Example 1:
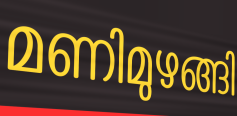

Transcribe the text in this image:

മണിമുഴങ്ങി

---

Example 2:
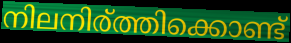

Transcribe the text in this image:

നിലനിര്ത്തിക്കൊണ്ട്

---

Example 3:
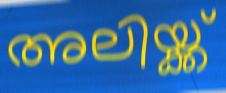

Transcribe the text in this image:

അലിയ്ക്ക്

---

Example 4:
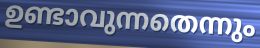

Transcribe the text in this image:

ഉണ്ടാവുന്നതെന്നും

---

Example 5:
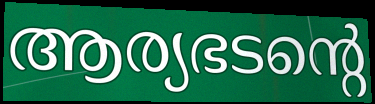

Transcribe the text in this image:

ആര്യഭടന്റെ